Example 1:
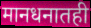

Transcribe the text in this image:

मानधनातही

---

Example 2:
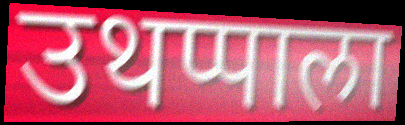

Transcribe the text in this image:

उथप्पाला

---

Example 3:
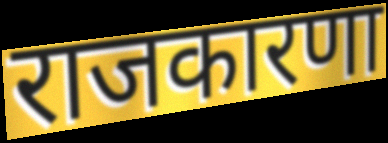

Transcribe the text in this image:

राजकारणा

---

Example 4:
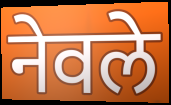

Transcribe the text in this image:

नेवले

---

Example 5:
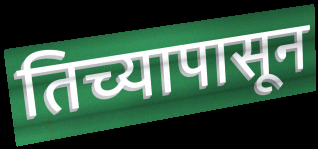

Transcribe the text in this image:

तिच्यापासून